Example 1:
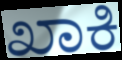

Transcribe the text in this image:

ಖಾಕಿ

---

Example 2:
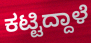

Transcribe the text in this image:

ಕಟ್ಟಿದ್ದಾಳೆ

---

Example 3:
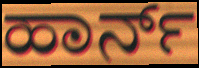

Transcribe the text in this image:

ಹಾರ್ನ್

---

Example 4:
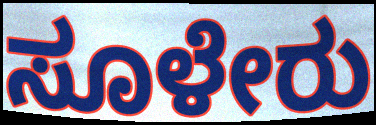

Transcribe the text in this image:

ಸೂಳೇರು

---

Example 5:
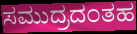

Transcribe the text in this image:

ಸಮುದ್ರದಂತಹ